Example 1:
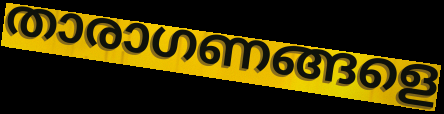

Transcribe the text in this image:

താരാഗണങ്ങളെ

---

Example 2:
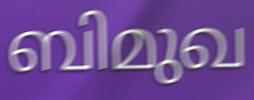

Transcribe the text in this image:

ബിമുഖ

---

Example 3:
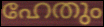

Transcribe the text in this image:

ഹേതും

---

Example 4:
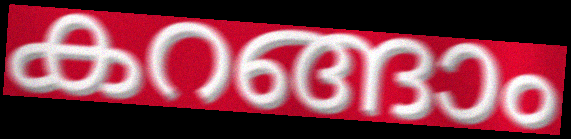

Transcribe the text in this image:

കറങ്ങാം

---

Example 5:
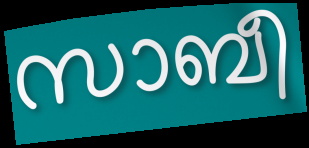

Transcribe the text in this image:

സാബീ